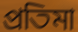
প্রতিমা